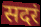
सदरं